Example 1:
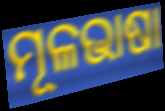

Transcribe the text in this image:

ମୂଳଭାଷା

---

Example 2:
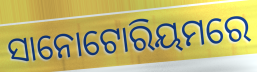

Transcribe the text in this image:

ସାନୋଟୋରିୟମରେ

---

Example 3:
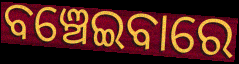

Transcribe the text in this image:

ବଞ୍ଚେଇବାରେ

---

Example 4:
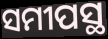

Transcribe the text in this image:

ସମୀପସ୍ଥ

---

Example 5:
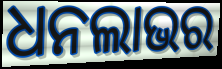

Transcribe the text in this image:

ଧନଲାଭର